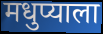
मधुप्याला